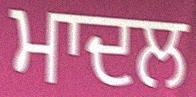
ਮਾਦਲ